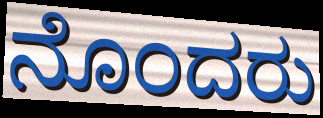
ನೊಂದರು